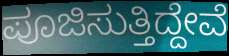
ಪೂಜಿಸುತ್ತಿದ್ದೇವೆ